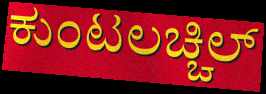
ಕುಂಟಲಚ್ಚಿಲ್